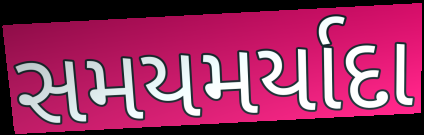
સમયમર્યાદા